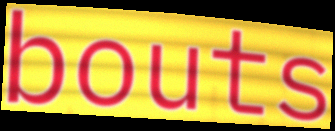
bouts